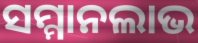
ସମ୍ମାନଲାଭ